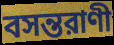
বসন্তরাণী